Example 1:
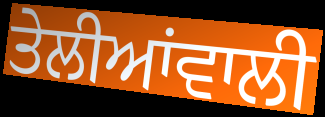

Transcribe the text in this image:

ਤੇਲੀਆਂਵਾਲੀ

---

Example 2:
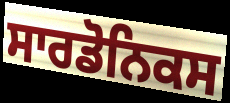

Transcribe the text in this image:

ਸਾਰਡੋਨਿਕਸ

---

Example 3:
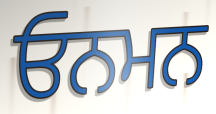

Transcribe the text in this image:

ਓਨਮਨ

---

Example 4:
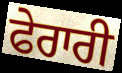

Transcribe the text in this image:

ਫੇਰਾਰੀ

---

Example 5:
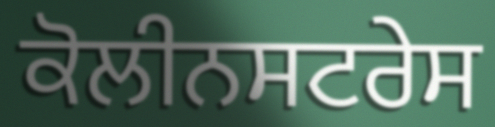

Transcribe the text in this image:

ਕੋਲੀਨਸਟਰੇਸ